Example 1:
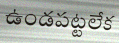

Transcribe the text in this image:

ఉండపట్టలేక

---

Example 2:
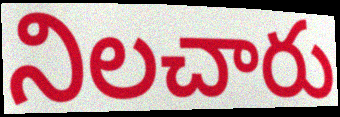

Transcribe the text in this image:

నిలచారు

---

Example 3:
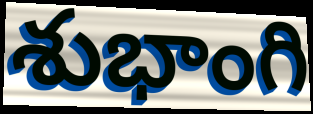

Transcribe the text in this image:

శుభాంగి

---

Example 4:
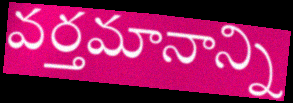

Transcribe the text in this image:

వర్తమానాన్ని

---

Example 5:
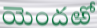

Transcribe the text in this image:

యెందఱో